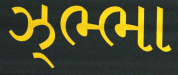
ઝ્ભ્ભા